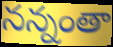
నన్నంతా